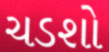
ચડશો